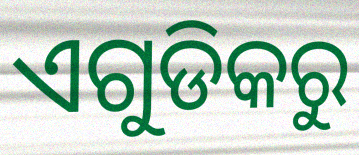
ଏଗୁଡିକରୁ